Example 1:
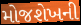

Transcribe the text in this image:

મોજશેખની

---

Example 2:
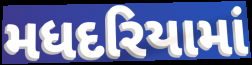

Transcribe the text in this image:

મધદરિયામાં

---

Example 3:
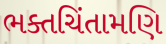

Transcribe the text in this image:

ભક્તચિંતામણિ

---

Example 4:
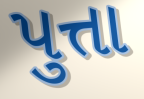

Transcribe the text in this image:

પુત્તા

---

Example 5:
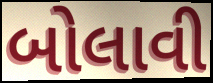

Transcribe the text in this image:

બોલાવી